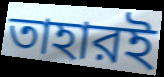
তাহারই